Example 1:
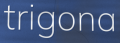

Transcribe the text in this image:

trigona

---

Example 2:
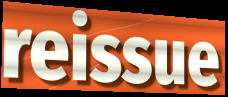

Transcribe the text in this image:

reissue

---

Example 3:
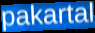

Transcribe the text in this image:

pakartal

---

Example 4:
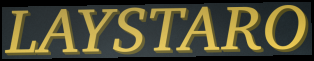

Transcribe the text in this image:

LAYSTARO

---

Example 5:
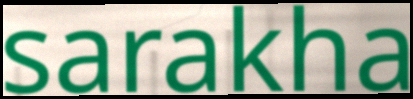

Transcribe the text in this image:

sarakha